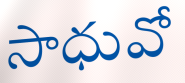
సాధువో